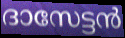
ദാസേട്ടൻ